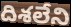
దిశలేని